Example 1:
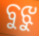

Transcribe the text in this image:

ବୁଝୁ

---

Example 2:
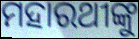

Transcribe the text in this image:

ମହାରଥୀଙ୍କୁ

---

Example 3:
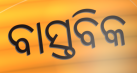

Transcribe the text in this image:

ବାସ୍ତବିକ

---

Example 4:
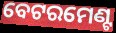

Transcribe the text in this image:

ବେଟରମେଣ୍ଟ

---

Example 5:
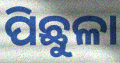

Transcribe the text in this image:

ପିଛୁଳା